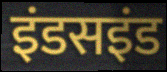
इंडसइंड